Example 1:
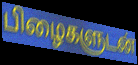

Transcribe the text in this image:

பிழைகளுடன்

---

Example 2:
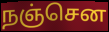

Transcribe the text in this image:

நஞ்சென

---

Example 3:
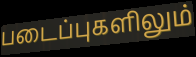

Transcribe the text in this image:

படைப்புகளிலும்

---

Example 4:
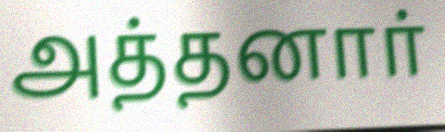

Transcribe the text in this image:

அத்தனார்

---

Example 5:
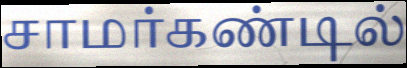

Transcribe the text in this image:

சாமர்கண்டில்